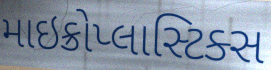
માઇક્રોપ્લાસ્ટિક્સ